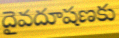
దైవదూషణకు